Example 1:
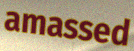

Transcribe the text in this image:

amassed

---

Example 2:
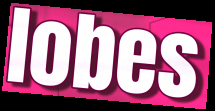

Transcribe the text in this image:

lobes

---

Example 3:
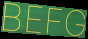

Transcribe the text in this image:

BEFG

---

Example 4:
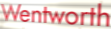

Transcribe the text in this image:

Wentworth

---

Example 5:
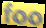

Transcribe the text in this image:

foo